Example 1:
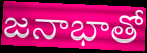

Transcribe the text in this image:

జనాభాతో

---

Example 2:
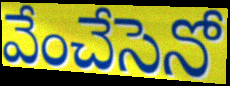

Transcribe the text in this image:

వేంచేసెనో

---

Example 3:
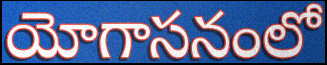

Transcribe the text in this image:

యోగాసనంలో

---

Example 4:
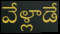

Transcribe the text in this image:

వేళ్లాడే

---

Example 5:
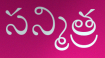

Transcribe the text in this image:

సన్మిత్ర